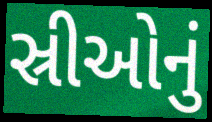
સ્રીઓનું